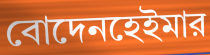
বোদেনহেইমার